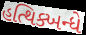
હત્થિક્ખન્ધે